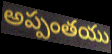
అప్పంతయు